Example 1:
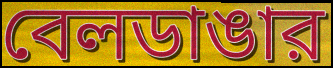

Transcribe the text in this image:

বেলডাঙার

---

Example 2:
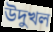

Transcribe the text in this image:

উদুখল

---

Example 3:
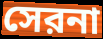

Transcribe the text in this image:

সেরনা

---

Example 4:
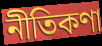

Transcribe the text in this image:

নীতিকণা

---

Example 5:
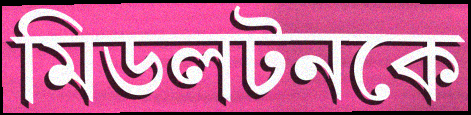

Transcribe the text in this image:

মিডলটনকে